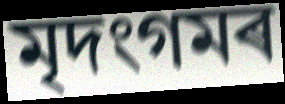
মৃদংগমৰ